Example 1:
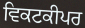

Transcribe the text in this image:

ਵਿਕਟਕੀਪਰ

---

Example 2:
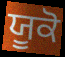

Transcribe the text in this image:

ਯੂਕੋ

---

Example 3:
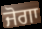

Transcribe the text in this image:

ਜੋਗਾ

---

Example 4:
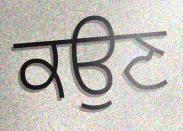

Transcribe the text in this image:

ਕਉਣ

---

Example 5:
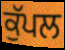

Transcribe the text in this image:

ਕੁੱਪਲ